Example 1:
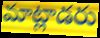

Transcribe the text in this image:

మాట్లాడరు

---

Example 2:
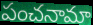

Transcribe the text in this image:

పంచనామా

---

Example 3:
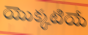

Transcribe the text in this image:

యొక్కటియే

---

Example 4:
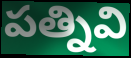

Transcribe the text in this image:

పత్నివి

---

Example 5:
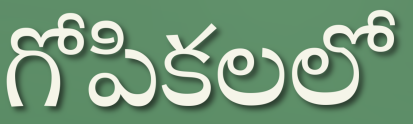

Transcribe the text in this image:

గోపికలలో